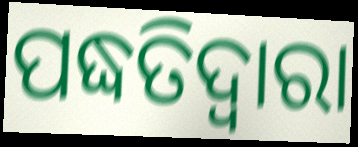
ପଦ୍ଧତିଦ୍ଵାରା